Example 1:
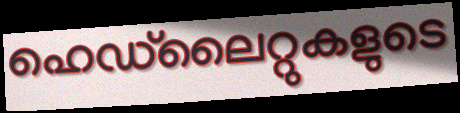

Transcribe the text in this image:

ഹെഡ്‌ലൈറ്റുകളുടെ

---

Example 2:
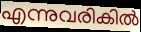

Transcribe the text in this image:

എന്നുവരികിൽ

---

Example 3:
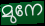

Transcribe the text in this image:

മുനേ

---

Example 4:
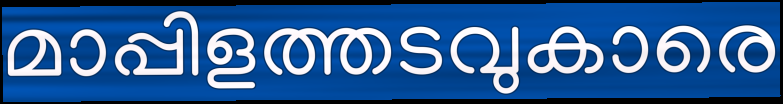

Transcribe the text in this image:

മാപ്പിളത്തടവുകാരെ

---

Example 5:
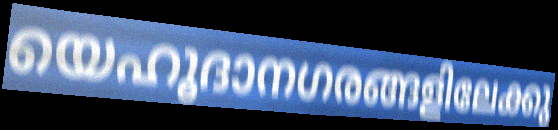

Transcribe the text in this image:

യെഹൂദാനഗരങ്ങളിലേക്കു